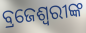
ବ୍ରଜେଶ୍ୱରୀଙ୍କ